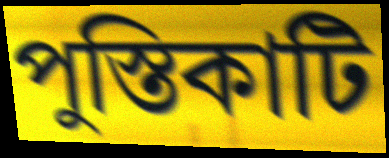
পুস্তিকাটি